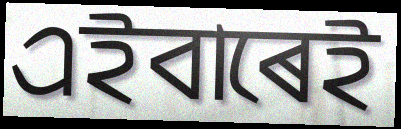
এইবাৰেই